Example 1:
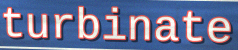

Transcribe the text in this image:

turbinate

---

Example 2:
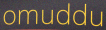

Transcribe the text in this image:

omuddu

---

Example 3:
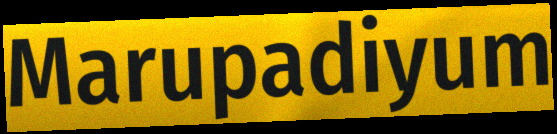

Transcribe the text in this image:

Marupadiyum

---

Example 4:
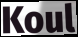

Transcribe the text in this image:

Koul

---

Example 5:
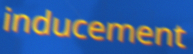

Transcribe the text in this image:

inducement